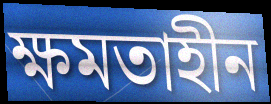
ক্ষমতাহীন